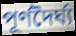
পূর্ণদৈর্ঘ্য